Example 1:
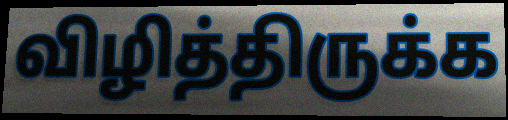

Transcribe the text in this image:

விழித்திருக்க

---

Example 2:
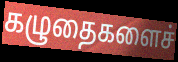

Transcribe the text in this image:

கழுதைகளைச்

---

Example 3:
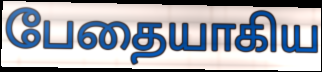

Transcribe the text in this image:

பேதையாகிய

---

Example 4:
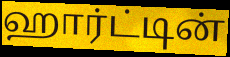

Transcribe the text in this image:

ஹார்ட்டின்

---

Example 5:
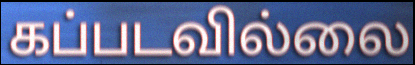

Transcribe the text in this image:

கப்படவில்லை